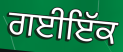
ਗਈਇੱਕ